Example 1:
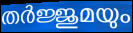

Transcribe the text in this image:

തർജ്ജുമയും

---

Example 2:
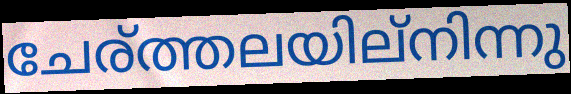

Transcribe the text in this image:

ചേര്ത്തലയില്നിന്നു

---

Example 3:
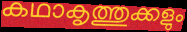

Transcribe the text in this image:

കഥാകൃത്തുക്കളും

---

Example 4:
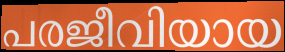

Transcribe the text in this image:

പരജീവിയായ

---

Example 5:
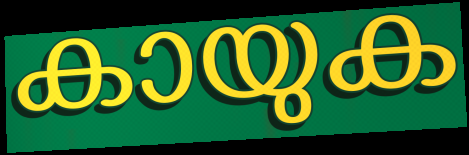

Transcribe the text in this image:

കായുക